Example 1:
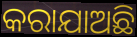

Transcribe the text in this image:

କରାଯାଅଛି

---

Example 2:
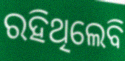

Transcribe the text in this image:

ରହିଥିଲେବି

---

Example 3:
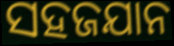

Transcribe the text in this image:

ସହଜଯାନ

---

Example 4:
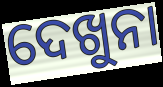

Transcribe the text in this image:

ଦେଖୁନା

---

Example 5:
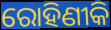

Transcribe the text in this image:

ରୋହିଣୀକି